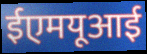
ईएमयूआई